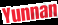
Yunnan